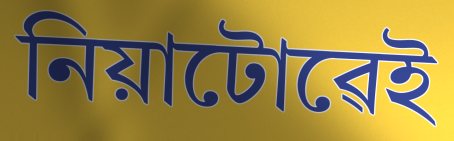
নিয়াটোৱেই